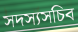
সদস্যসচিব